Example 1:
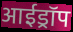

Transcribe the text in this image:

आईड्रॉप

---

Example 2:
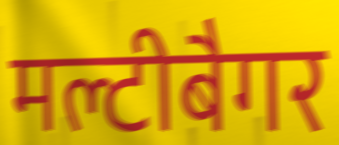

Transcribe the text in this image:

मल्‍टीबैगर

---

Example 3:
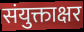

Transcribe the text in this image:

संयुक्ताक्षर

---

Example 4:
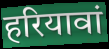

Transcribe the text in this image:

हरियावां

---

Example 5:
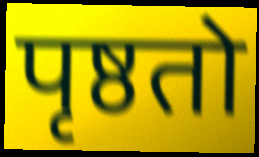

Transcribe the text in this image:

पृष्ठतो